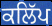
ਕਲਿੱਪ